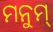
ମନୁମ୍